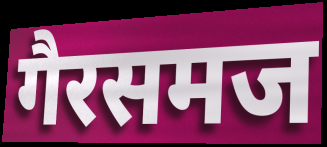
गैरसमज